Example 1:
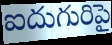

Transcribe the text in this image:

ఐదుగురిపై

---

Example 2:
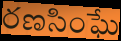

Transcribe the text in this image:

రణసింఘే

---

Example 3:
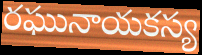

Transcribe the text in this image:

రఘునాయకస్య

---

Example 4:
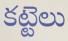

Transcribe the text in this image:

కట్టెలు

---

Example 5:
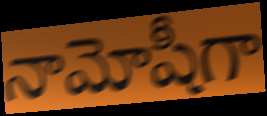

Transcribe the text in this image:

నామోషీగా